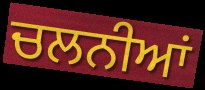
ਚਲਨੀਆਂ